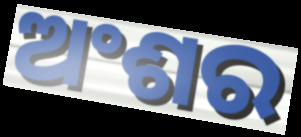
ଅଂଶର